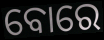
ବୋରେ